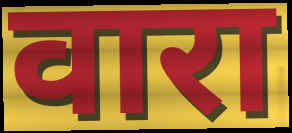
वारा